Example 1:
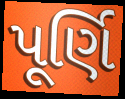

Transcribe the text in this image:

પૂર્ણિ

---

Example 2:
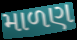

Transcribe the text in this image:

માળણ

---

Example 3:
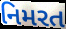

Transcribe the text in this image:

નિમરત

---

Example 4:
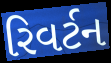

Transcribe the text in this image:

રિવર્ટન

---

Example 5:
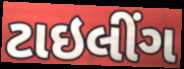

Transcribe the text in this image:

ટાઇલીંગ